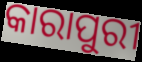
କାରାପୁରୀ